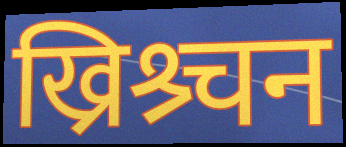
ख्रिश्र्चन